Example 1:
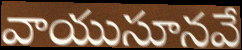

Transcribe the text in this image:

వాయుసూనవే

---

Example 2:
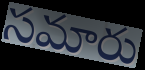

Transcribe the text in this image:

సమారు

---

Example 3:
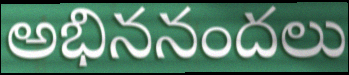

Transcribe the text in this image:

అభిననందలు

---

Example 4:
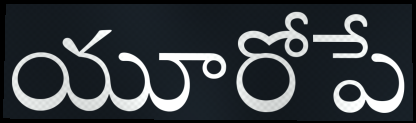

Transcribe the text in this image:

యూరోపే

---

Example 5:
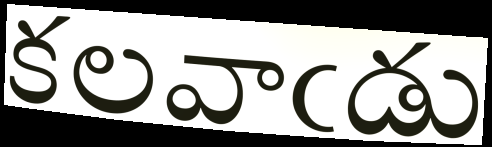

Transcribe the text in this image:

కలవాఁడు